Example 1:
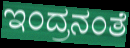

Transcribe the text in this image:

ಇಂದ್ರನಂತೆ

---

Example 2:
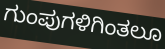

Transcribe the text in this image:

ಗುಂಪುಗಳಿಗಿಂತಲೂ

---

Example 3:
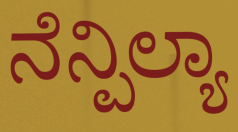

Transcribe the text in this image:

ನೆನ್ಪಿಲ್ಯಾ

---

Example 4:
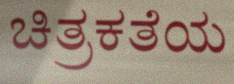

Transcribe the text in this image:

ಚಿತ್ರಕತೆಯ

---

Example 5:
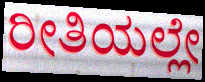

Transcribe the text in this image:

ರೀತಿಯಲ್ಲೇ